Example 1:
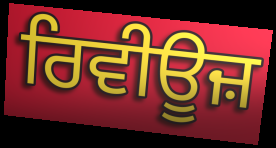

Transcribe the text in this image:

ਰਿਵੀਊਜ਼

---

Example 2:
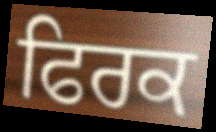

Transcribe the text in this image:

ਫਿਰਕ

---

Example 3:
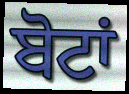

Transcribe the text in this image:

ਬੋਟਾਂ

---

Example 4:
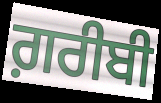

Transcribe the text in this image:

ਗ਼ਰੀਬੀ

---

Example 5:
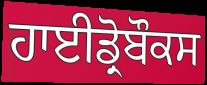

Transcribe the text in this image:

ਹਾਈਡ੍ਰੋਬੌਕਸ